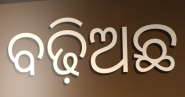
ବଢ଼ିଅଛ